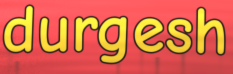
durgesh